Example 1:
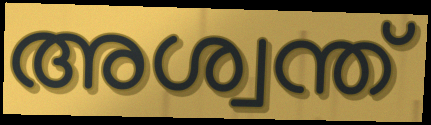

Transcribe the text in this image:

അശ്വന്ത്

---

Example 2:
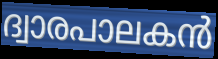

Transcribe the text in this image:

ദ്വാരപാലകൻ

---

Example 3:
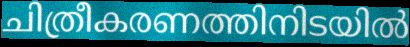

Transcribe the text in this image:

ചിത്രീകരണത്തിനിടയിൽ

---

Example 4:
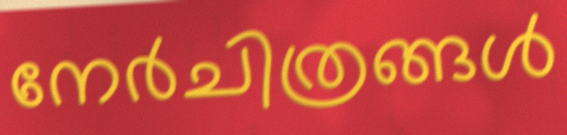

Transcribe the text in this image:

നേർചിത്രങ്ങൾ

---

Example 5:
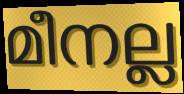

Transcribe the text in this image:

മീനല്ല